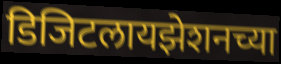
डिजिटलायझेशनच्या